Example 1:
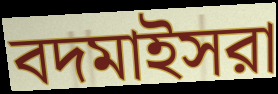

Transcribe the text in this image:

বদমাইসরা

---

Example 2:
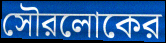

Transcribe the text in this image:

সৌরলোকের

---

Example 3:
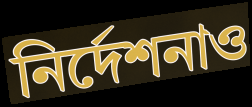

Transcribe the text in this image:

নির্দেশনাও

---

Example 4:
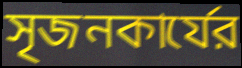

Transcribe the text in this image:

সৃজনকার্যের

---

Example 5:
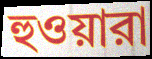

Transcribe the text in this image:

হুওয়ারা